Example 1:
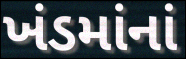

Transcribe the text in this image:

ખંડમાંનાં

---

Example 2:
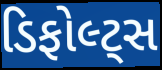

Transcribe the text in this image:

ડિફોલ્ટ્સ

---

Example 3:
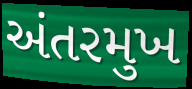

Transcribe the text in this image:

અંતરમુખ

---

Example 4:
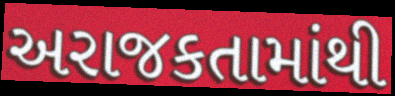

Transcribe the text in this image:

અરાજકતામાંથી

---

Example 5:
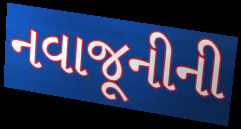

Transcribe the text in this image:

નવાજૂનીની